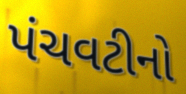
પંચવટીનો